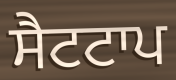
ਸੈਟਟਾਪ